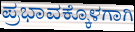
ಪ್ರಭಾವಕ್ಕೊಳಗಾಗಿ